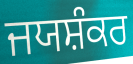
ਜਯਸ਼ੰਕਰ